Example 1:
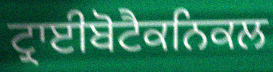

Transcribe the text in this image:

ਟ੍ਰਾਈਬੋਟੈਕਨਿਕਲ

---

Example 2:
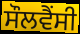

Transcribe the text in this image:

ਸੌਲਵੈਂਸੀ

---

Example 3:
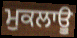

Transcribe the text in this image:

ਮੁਕਲਾਊ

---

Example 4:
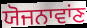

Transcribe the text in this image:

ਯੋਜਨਾਵਾਂਣ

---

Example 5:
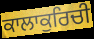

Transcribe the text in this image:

ਕਾਲਾਕੁਰਿਚੀ